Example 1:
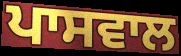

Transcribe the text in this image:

ਪਾਸਵਾਲ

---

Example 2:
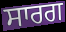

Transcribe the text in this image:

ਸਾਰਗ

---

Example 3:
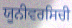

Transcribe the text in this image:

ਯੂਨੀਵਰਸਿਚੀ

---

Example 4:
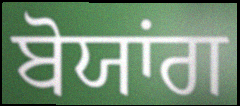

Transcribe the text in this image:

ਬੋਯਾਂਗ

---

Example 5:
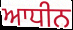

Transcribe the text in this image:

ਆਧੀਨ